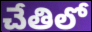
చేతిలో